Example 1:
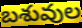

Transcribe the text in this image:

బశువుల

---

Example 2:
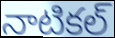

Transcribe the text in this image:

నాటికల్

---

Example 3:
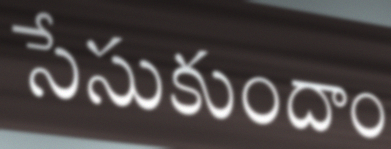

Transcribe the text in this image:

సేసుకుందాం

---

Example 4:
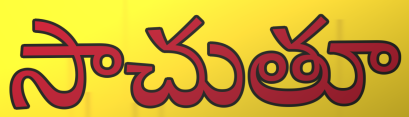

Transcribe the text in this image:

సాచుతూ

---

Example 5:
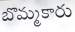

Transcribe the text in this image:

బొమ్మకారు